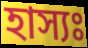
হাস্যঃ